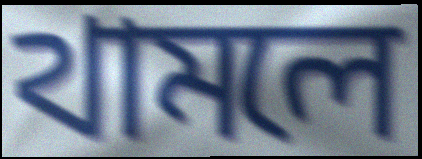
থামলে